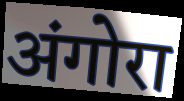
अंगोरा